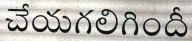
చేయగలిగిందీ